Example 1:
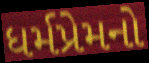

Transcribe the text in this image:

ધર્મપ્રેમનો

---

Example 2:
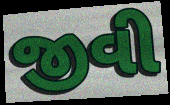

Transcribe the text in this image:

જીવી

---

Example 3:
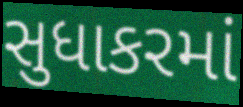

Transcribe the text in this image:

સુધાકરમાં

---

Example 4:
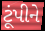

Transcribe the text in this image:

ટૂંપીને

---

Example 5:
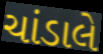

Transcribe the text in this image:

ચાંડાલે